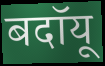
बदॉयू